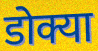
डोक्या